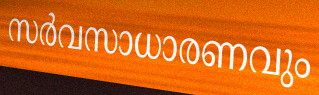
സർവസാധാരണവും